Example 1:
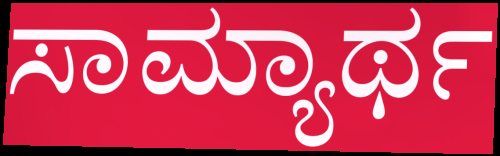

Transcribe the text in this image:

ಸಾಮ್ಯಾರ್ಥ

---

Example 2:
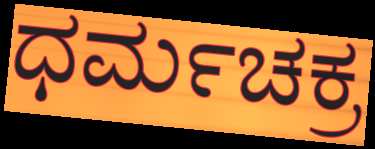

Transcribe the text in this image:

ಧರ್ಮಚಕ್ರ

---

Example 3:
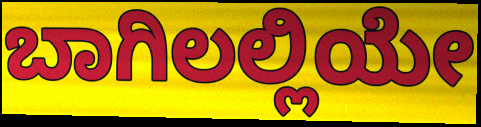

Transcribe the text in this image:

ಬಾಗಿಲಲ್ಲಿಯೇ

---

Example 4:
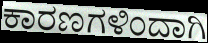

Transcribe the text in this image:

ಕಾರಣಗಳಿಂದಾಗಿ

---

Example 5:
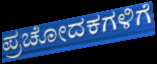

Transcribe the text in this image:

ಪ್ರಚೋದಕಗಳಿಗೆ